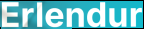
Erlendur